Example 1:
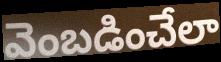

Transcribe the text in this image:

వెంబడించేలా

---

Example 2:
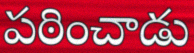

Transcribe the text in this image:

పఠించాడు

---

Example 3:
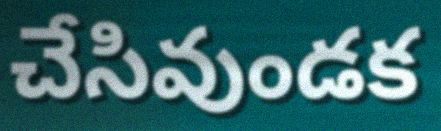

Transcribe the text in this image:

చేసివుండక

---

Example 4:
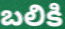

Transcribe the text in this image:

బలికి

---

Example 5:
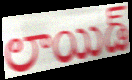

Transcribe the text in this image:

లాయిడ్